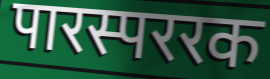
पारस्पररक